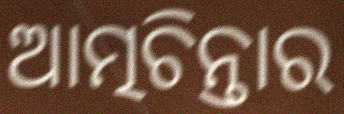
ଆତ୍ମଚିନ୍ତାର